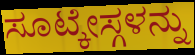
ಸೂಟ್ಕೇಸ್ಗಳನ್ನು